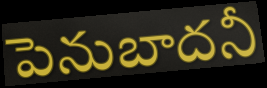
పెనుబాదనీ